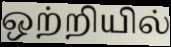
ஒற்றியில்